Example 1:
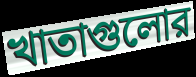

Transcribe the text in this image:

খাতাগুলোর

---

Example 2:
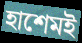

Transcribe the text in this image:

হাশেমই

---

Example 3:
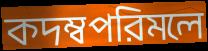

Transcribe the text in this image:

কদম্বপরিমলে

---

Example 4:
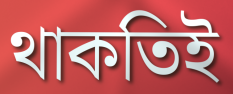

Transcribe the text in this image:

থাকতিই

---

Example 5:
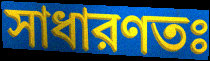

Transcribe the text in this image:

সাধারণতঃ